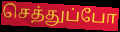
செத்துப்போ